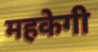
महकेगी